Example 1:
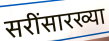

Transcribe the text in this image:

सरींसारख्या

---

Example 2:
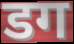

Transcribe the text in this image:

डग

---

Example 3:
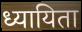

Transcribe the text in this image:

ध्यायिता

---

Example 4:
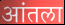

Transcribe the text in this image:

आंतला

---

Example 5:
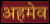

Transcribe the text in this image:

अहमेव